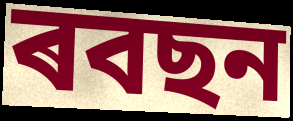
ৰবছন